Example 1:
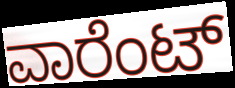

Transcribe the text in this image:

ವಾರೆಂಟ್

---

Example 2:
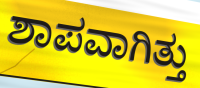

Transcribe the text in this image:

ಶಾಪವಾಗಿತ್ತು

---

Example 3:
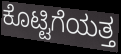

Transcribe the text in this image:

ಕೊಟ್ಟಿಗೆಯತ್ತ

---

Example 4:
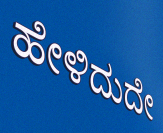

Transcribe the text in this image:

ಹೇಳಿದುದೇ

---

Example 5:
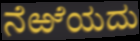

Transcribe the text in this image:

ನೆಱೆಯದು